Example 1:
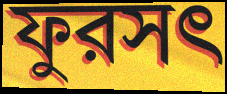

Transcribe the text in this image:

ফুরসৎ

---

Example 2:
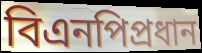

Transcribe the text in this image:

বিএনপিপ্রধান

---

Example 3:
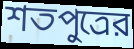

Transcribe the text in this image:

শতপুত্রের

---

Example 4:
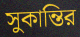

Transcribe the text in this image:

সুকান্তির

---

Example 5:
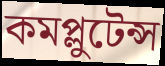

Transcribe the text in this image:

কমপ্লুটেন্স